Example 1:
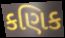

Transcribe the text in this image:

કણિક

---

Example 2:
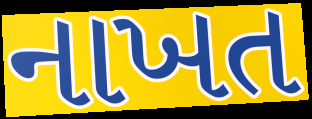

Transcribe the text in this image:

નાખત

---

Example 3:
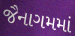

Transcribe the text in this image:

જૈનાગમમાં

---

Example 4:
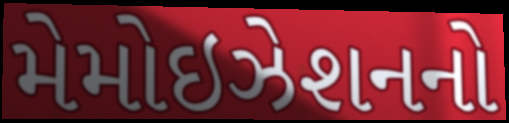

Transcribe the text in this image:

મેમોઇઝેશનનો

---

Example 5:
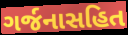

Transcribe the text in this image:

ગર્જનાસહિત